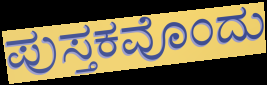
ಪುಸ್ತಕವೊಂದು